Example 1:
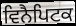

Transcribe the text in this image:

ਵਿਨੈਪਿਟਕ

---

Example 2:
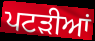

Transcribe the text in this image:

ਪਟਡ਼ੀਆਂ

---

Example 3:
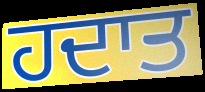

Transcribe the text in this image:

ਹਦਾਤ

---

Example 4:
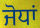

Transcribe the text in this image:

ਜੋਧਾਂ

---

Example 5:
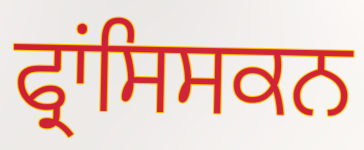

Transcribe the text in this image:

ਫ੍ਰਾਂਸਿਸਕਨ